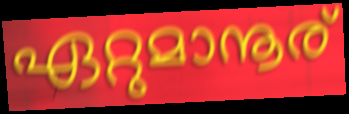
ഏറ്റുമാനൂര്